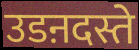
उडऩदस्ते